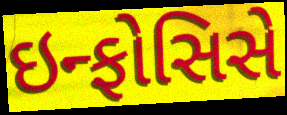
ઇન્ફોસિસે